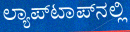
ಲ್ಯಾಪ್‌ಟಾಪ್‌ನಲ್ಲಿ